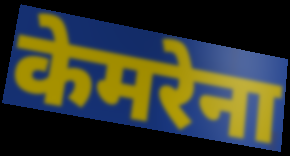
केमरेना